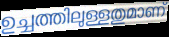
ഉച്ചത്തിലുള്ളതുമാണ്